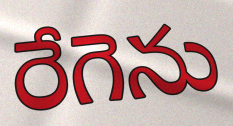
రేగెను